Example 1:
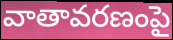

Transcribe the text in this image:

వాతావరణంపై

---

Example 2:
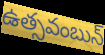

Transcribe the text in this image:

ఉత్సవంబున్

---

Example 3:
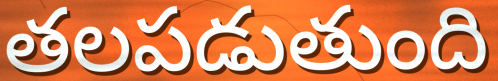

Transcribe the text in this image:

తలపడుతుంది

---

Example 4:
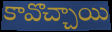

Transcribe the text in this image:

కావొచ్చాయి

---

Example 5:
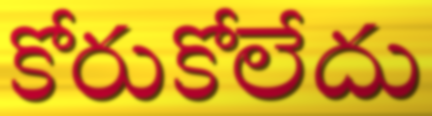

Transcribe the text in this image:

కోరుకోలేదు